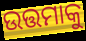
ଉତ୍ତମାକୁ